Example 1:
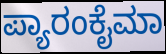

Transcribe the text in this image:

ಪ್ಯಾರಂಕೈಮಾ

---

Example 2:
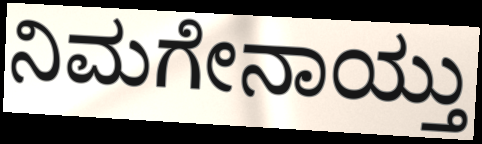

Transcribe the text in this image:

ನಿಮಗೇನಾಯ್ತು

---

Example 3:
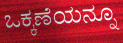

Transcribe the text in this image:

ಒಕ್ಕಣೆಯನ್ನೂ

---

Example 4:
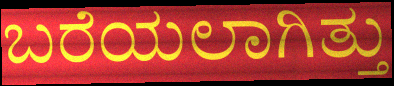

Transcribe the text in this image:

ಬರೆಯಲಾಗಿತ್ತು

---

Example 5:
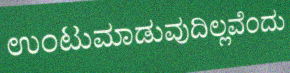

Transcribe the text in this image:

ಉಂಟುಮಾಡುವುದಿಲ್ಲವೆಂದು